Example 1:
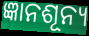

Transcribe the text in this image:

ଜ୍ଞାନଶୂନ୍ୟ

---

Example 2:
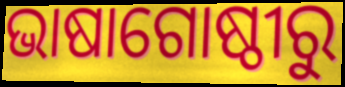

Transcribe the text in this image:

ଭାଷାଗୋଷ୍ଠୀରୁ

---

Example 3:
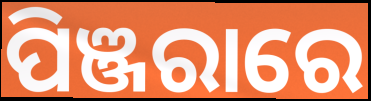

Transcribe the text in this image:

ପିଞ୍ଜରାରେ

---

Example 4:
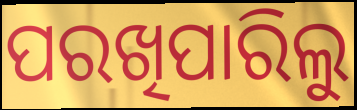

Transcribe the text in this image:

ପରଖିପାରିଲୁ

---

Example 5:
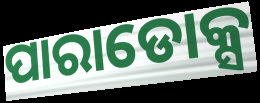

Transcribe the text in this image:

ପାରାଡୋକ୍ସ